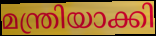
മന്ത്രിയാക്കി